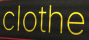
clothe